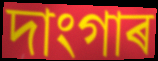
দাংগাৰ